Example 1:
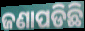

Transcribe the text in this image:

ଜଣାପଡିଛି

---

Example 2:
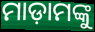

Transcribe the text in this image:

ମାଡ଼ାମଙ୍କୁ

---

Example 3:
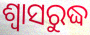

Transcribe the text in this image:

ଶ୍ୱାସରୁଦ୍ଧ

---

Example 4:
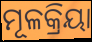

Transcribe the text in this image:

ମୂଳକ୍ରିୟା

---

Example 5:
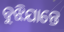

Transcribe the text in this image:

ବୁଝିଯାନ୍ତେ